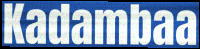
Kadambaa